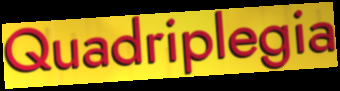
Quadriplegia